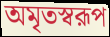
অমৃতস্বরূপ